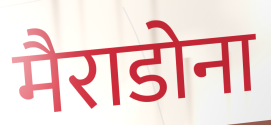
मैराडोना